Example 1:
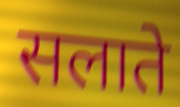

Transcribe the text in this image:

सलाते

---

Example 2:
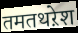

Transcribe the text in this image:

तमतथऱेश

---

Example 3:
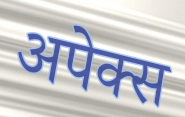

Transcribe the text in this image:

अपेक्स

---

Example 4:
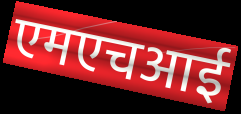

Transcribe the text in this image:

एमएचआई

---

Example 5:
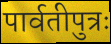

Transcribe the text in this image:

पार्वतीपुत्रः